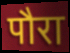
पौरा